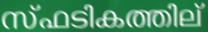
സ്ഫടികത്തില്